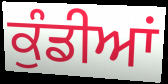
ਕੁੰਡੀਆਂ